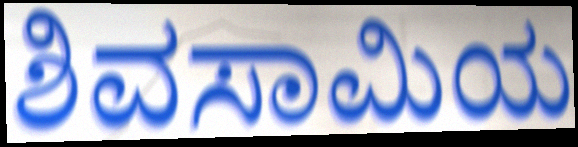
ಶಿವಸಾಮಿಯ